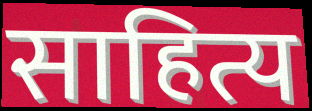
साहित्य